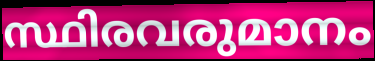
സ്ഥിരവരുമാനം